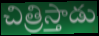
చిత్రిస్తాడు